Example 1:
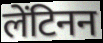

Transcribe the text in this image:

लेंटिनन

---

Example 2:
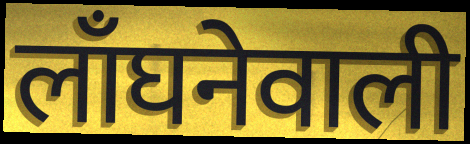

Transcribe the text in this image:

लाँघनेवाली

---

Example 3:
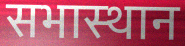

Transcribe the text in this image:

सभास्थान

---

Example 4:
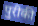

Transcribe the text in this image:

पुरीकी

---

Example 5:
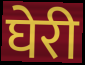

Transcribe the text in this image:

घेरी